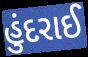
હુંદરાઈ